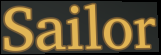
Sailor